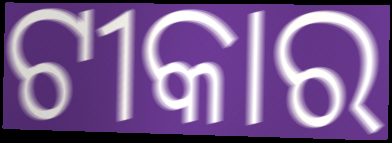
ଟୀକାର